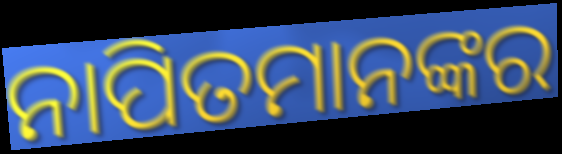
ନାପିତମାନଙ୍କର